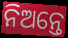
ନିଅନ୍ତେ